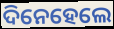
ଦିନେହେଲେ